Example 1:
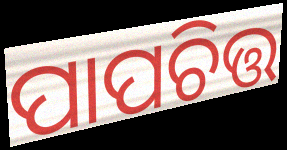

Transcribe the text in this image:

ପାପଚିତ୍ତ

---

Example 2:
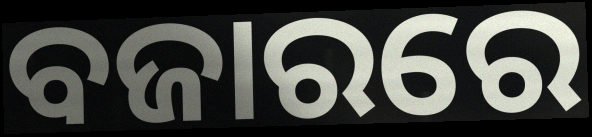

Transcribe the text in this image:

ବଜାରରେ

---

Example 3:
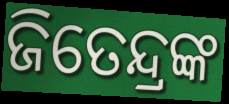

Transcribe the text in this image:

ଜିତେନ୍ଦ୍ରଙ୍କ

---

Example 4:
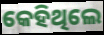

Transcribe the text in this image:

କେହିଥିଲେ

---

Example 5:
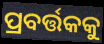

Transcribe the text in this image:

ପ୍ରବର୍ତ୍ତକକୁ